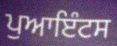
ਪੁਆਇੰਟਸ